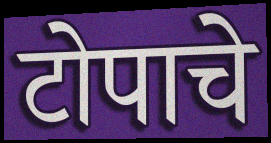
टोपाचे